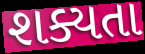
શક્યતા